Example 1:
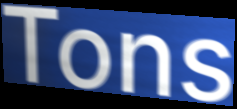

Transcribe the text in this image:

Tons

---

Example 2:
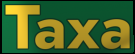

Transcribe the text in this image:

Taxa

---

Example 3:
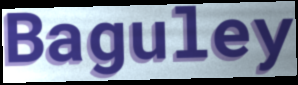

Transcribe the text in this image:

Baguley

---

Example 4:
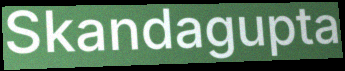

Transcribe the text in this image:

Skandagupta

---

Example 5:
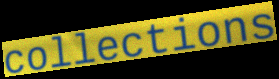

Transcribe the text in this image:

collections